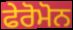
ਫੇਰੋਮੋਨ